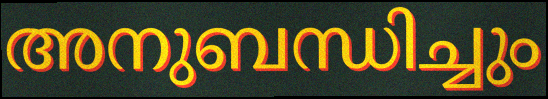
അനുബന്ധിച്ചും